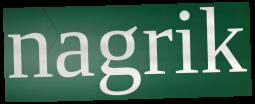
nagrik